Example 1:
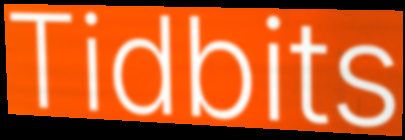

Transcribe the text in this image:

Tidbits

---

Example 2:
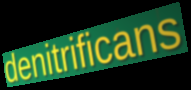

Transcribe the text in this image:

denitrificans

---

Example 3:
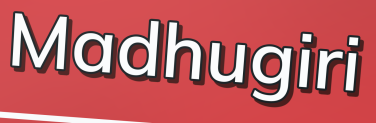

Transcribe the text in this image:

Madhugiri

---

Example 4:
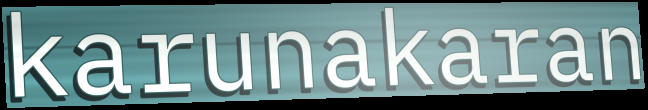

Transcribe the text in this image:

karunakaran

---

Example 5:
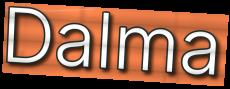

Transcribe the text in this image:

Dalma